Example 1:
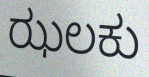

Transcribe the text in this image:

ಝಲಕು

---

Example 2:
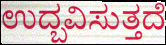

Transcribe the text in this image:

ಉದ್ಬವಿಸುತ್ತದೆ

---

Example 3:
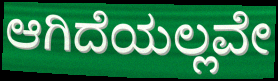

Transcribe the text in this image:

ಆಗಿದೆಯಲ್ಲವೇ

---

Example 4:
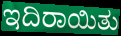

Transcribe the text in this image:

ಇದಿರಾಯಿತು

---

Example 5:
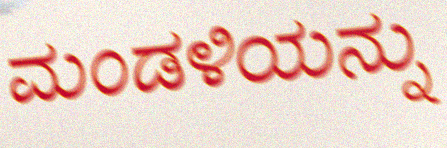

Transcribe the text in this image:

ಮಂಡಳಿಯನ್ನು